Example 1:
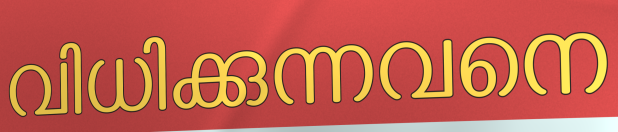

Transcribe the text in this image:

വിധിക്കുന്നവനെ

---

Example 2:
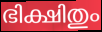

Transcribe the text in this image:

ഭിക്ഷിതും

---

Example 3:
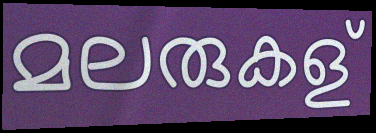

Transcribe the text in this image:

മലരുകള്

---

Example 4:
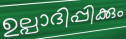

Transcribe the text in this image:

ഉല്പാദിപ്പിക്കും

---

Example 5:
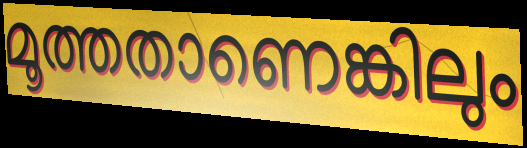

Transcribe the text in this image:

മൂത്തതാണെങ്കിലും